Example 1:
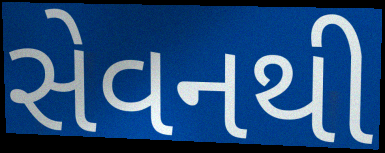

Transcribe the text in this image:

સેવનથી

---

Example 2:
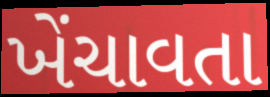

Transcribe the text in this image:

ખેંચાવતા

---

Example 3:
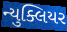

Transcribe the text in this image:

ન્યુક્લિયર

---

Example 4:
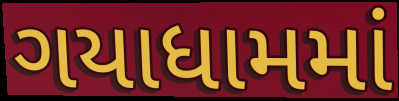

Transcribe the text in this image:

ગયાધામમાં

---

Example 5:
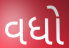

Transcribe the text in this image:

વધો